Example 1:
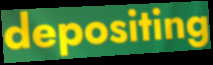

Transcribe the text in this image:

depositing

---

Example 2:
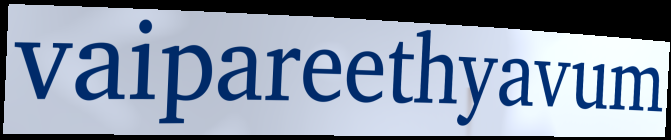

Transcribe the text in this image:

vaipareethyavum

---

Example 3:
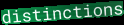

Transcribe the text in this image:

distinctions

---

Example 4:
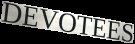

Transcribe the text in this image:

DEVOTEES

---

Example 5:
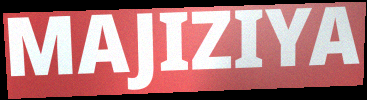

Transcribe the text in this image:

MAJIZIYA